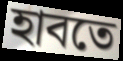
হাবতে